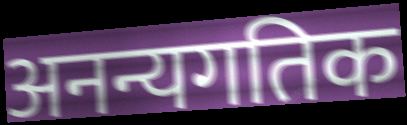
अनन्यगतिक